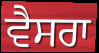
ਵੈਸਰਾ